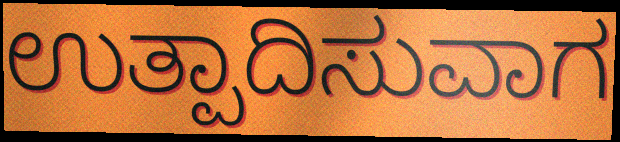
ಉತ್ಪಾದಿಸುವಾಗ